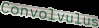
Convolvulus